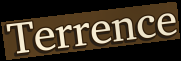
Terrence